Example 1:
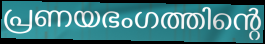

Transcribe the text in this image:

പ്രണയഭംഗത്തിന്റെ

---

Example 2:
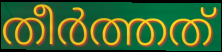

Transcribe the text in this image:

തീർത്തത്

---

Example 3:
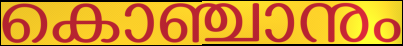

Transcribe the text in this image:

കൊഞ്ചാനും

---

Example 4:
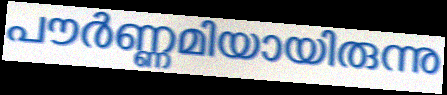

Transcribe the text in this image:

പൗർണ്ണമിയായിരുന്നു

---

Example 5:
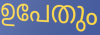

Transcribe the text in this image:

ഉപേതും